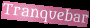
Tranquebar